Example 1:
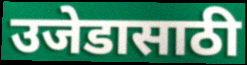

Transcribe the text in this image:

उजेडासाठी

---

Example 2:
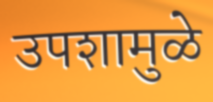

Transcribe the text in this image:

उपशामुळे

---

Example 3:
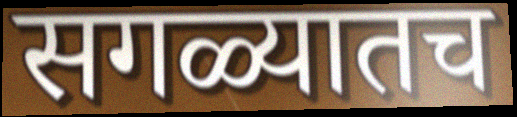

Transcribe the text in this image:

सगळ्यातच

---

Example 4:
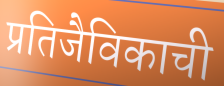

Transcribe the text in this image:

प्रतिजैविकाची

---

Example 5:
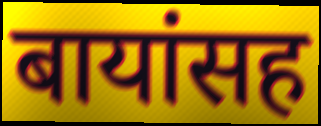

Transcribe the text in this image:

बायांसह